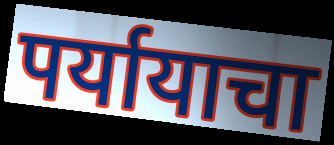
पर्यायाचा